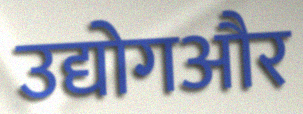
उद्योगऔर